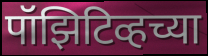
पॉझिटिव्हच्या